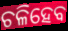
ଚଳିହେବ